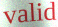
valid